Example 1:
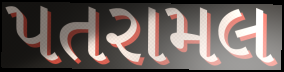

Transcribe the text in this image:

પતરામલ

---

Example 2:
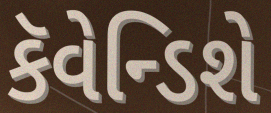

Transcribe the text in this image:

કૅવેન્ડિશે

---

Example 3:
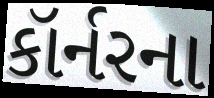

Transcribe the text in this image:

કૉર્નરના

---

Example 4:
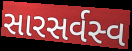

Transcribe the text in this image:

સારસર્વસ્વ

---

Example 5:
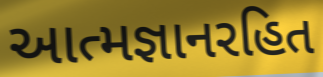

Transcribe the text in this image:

આત્મજ્ઞાનરહિત